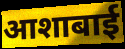
आशाबाई